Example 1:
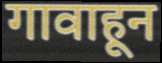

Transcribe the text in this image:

गावाहून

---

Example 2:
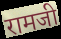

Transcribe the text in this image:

रामजी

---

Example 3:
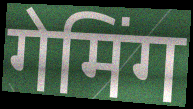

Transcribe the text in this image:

गेमिंग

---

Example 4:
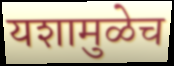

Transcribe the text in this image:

यशामुळेच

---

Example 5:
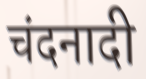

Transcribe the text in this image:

चंदनादी